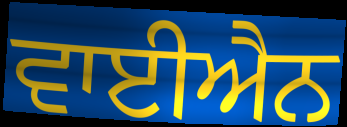
ਵਾਈਐਨ